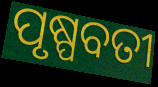
ପୃଷ୍ପବତୀ